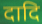
दादि